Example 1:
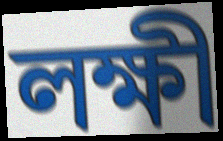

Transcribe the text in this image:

লক্ষী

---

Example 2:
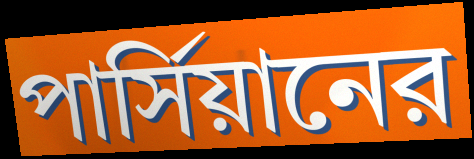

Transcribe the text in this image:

পার্সিয়ানের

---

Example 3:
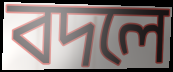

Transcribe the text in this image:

বদলে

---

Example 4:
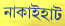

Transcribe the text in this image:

নাকাইহাট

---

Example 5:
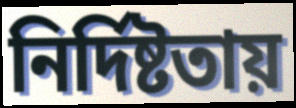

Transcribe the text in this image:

নির্দিষ্টতায়